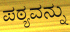
ಪಠ್ಯವನ್ನು